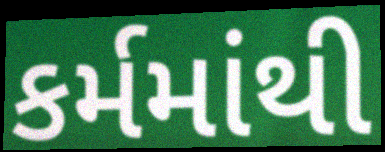
કર્મમાંથી